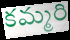
కమ్మరి